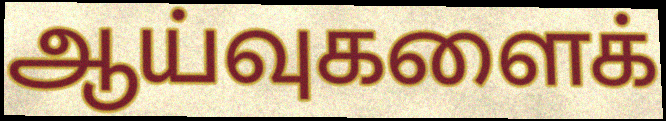
ஆய்வுகளைக்